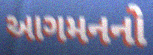
આગમનનો